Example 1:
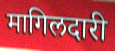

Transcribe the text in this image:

मागिलदारी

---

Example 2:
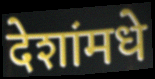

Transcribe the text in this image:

देशांमधे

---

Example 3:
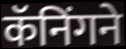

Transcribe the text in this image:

कॅनिंगने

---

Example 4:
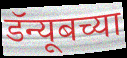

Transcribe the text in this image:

डॅन्यूबच्या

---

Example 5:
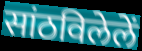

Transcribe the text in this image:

सांठविलेलें